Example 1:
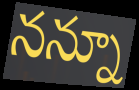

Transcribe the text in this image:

నన్నూ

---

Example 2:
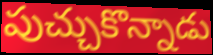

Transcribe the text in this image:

పుచ్చుకొన్నాడు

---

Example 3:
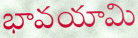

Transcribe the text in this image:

భావయామి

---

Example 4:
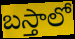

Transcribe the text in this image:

బస్తాలో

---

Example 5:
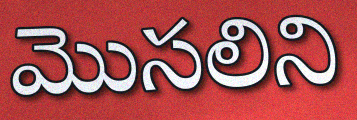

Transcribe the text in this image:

మొసలిని